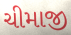
ચીમાજી